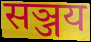
सञ्जय